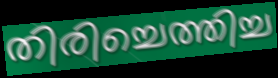
തിരിച്ചെത്തിച്ച